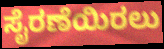
ಸೈರಣೆಯಿರಲು